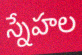
స్నేహల